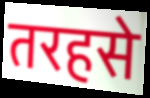
तरहसे